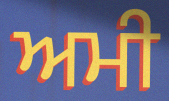
ਅਮੀ